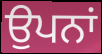
ਉਪਨਾਂ